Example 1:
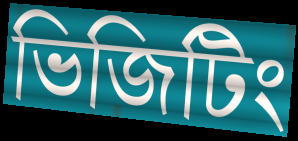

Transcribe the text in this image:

ভিজিটিং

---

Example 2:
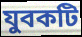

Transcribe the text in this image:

যুবকটি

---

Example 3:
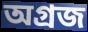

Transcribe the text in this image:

অগ্রজ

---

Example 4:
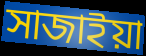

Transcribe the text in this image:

সাজাইয়া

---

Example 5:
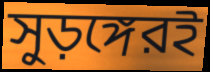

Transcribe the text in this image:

সুড়ঙ্গেরই